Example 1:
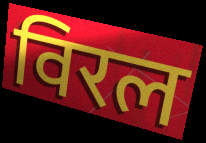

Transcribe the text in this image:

विरल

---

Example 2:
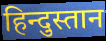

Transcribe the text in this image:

हिन्‍दुस्‍तान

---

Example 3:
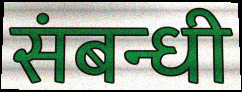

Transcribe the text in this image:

संबन्‍धी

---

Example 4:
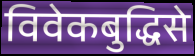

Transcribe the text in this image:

विवेकबुद्धिसे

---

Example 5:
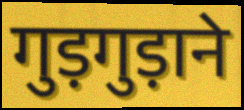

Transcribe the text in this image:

गुड़गुड़ाने